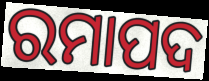
ରମାପଦ